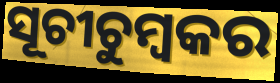
ସୂଚୀଚୁମ୍ବକର